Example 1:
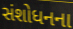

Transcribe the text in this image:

સંશોધનના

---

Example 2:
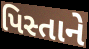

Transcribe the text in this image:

પિસ્તાને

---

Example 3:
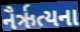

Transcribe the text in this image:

નૈર્ઋત્યના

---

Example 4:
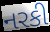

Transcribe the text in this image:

નરકી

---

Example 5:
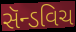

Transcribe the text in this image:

સૅન્ડવિચ